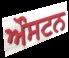
ਔਸਟਨ